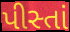
પીસ્તાં